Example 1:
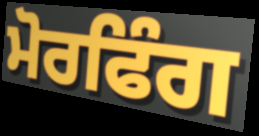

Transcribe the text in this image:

ਮੋਰਫਿੰਗ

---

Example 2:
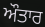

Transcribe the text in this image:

ਔਤਾਰ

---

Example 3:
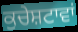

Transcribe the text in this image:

ਕੁਚੇਸ਼ਟਾਵਾਂ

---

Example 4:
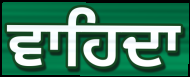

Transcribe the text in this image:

ਵਾਹਿਦਾ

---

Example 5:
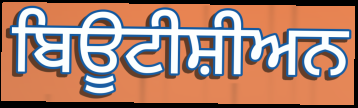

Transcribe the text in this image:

ਬਿਊਟੀਸ਼ੀਅਨ